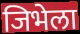
जिभेला